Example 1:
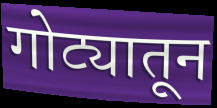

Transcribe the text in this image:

गोट्यातून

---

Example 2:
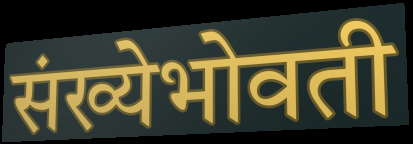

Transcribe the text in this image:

संख्येभोवती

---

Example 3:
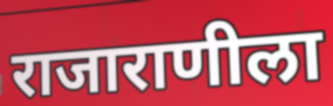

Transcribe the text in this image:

राजाराणीला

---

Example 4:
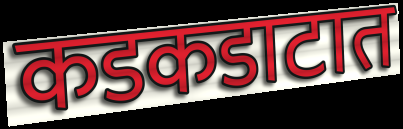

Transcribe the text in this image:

कडकडाटात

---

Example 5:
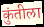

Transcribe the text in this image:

कुंतीला